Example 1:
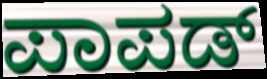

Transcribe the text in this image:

ಪಾಪಡ್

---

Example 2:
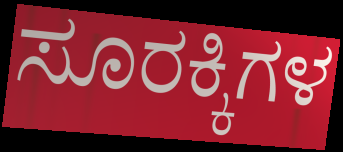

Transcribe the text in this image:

ಸೂರಕ್ಕಿಗಳ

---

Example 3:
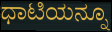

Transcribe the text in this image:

ಧಾಟಿಯನ್ನೂ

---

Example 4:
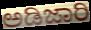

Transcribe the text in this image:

ಅಡಿಜಾರಿ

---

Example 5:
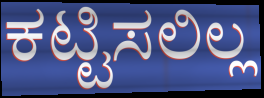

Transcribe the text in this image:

ಕಟ್ಟಿಸಲಿಲ್ಲ